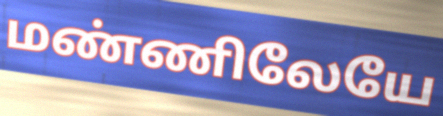
மண்ணிலேயே